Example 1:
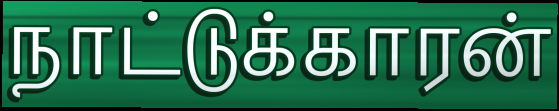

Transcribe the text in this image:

நாட்டுக்காரன்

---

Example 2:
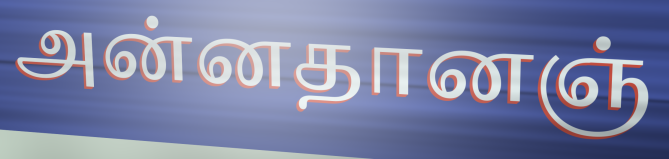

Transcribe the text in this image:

அன்னதானஞ்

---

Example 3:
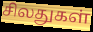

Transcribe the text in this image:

சிலதுகள்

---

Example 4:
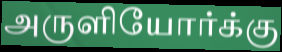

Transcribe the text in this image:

அருளியோர்க்கு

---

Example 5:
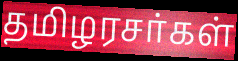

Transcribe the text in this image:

தமிழரசர்கள்